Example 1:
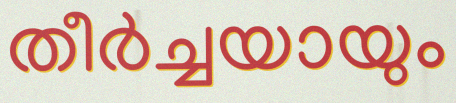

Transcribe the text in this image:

തീർച്ചയായും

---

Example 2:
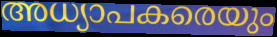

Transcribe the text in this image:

അധ്യാപകരെയും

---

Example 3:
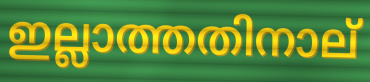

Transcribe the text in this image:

ഇല്ലാത്തതിനാല്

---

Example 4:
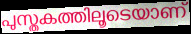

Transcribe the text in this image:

പുസ്തകത്തിലൂടെയാണ്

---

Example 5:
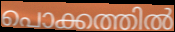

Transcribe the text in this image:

പൊക്കത്തിൽ